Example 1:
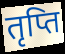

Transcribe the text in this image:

तृप्ति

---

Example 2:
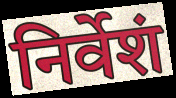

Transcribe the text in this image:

निर्वेशं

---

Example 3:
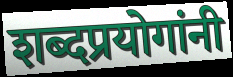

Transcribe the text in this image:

शब्दप्रयोगांनी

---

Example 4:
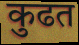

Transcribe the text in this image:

कुढत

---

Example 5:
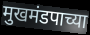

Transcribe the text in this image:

मुखमंडपाच्या